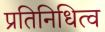
प्रतिनिधित्व